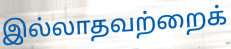
இல்லாதவற்றைக்